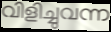
വിളിച്ചുവന്ന